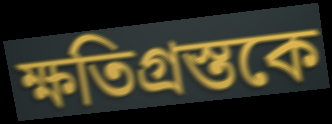
ক্ষতিগ্রস্তকে